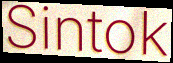
Sintok